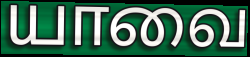
யாவை